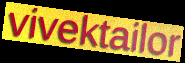
vivektailor